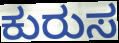
ಕುರುಸ